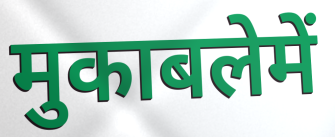
मुकाबलेमें